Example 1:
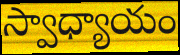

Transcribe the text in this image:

స్వాధ్యాయం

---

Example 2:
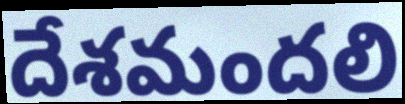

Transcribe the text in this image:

దేశమందలి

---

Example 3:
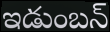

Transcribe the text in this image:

ఇడుంబన్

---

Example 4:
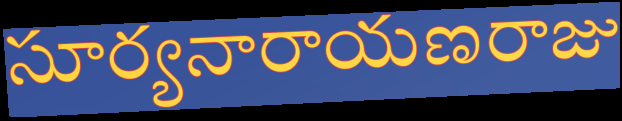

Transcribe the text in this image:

సూర్యనారాయణరాజు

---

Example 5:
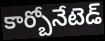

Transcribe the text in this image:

కార్బోనేటెడ్